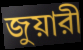
জুয়ারী